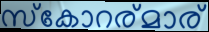
സ്കോറര്മാര്